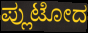
ಪ್ಲುಟೋದ